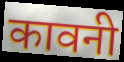
कावनी